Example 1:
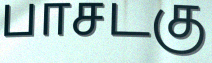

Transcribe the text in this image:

பாசடகு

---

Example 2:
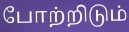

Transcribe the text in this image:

போற்றிடும்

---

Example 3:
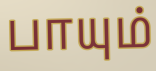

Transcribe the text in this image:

பாயும்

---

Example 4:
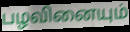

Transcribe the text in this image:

பழவினையும்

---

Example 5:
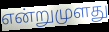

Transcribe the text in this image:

என்றுமுளது